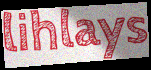
lihlays